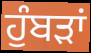
ਹੁੰਬੜਾਂ